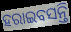
ହରାଇବସନ୍ତି